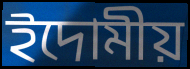
ইদোমীয়